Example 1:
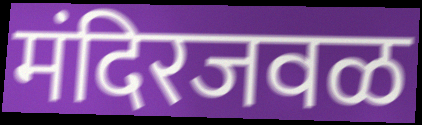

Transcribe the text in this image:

मंदिरजवळ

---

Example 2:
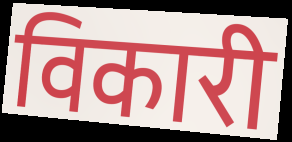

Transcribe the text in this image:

विकारी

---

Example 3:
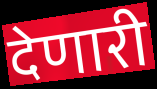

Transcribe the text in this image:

देणारी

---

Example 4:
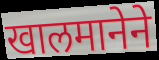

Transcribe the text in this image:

खालमानेने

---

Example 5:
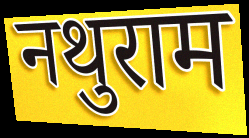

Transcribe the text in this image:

नथुराम